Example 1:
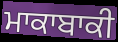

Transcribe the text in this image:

ਮਾਕਾਬਾਕੀ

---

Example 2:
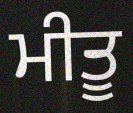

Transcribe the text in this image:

ਮੀਤੂ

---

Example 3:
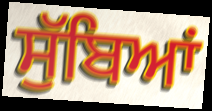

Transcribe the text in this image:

ਸੁੱਬਿਆਂ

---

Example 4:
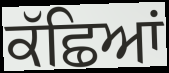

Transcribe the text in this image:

ਕੱਛਿਆਂ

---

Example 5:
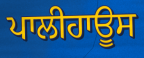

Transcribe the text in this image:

ਪਾਲੀਹਾਊਸ